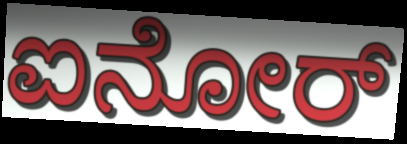
ಐನೋರ್